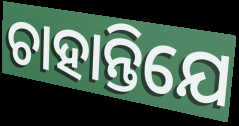
ଚାହାନ୍ତିଯେ